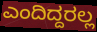
ಎಂದಿದ್ದರಲ್ಲ